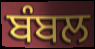
ਬੰਬਲ